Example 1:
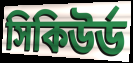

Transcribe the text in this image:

সিকিউর্ড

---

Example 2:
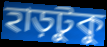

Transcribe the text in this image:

হাড়টুকু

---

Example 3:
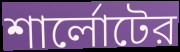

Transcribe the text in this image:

শার্লোটের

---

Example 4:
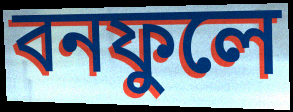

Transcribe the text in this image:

বনফুলে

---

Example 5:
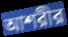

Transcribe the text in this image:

আশরীর